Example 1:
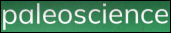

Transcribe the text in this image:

paleoscience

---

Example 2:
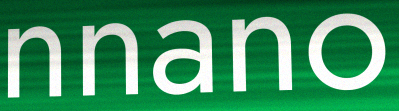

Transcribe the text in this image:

nnano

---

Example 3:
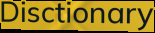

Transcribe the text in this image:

Disctionary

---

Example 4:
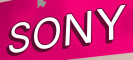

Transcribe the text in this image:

SONY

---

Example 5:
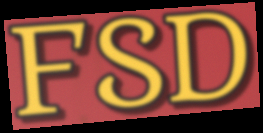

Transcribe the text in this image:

FSD